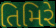
તિમિરે